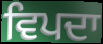
ਵਿਪਦਾ